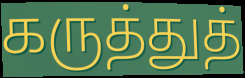
கருத்துத்